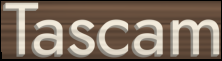
Tascam